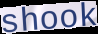
shook